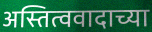
अस्तित्ववादाच्या